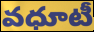
వధూటీ